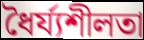
ধৈর্য্যশীলতা